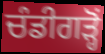
ਚੰਡੀਗੜ੍ਹੋਂ